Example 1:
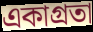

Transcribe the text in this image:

একাগ্ৰতা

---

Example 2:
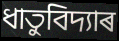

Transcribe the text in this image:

ধাতুবিদ্যাৰ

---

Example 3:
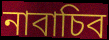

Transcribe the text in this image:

নাবাচিব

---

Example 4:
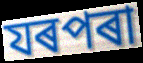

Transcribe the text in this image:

যৰপৰা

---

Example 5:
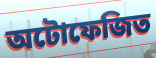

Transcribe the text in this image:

অটোফেজিত